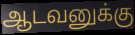
ஆடவனுக்கு